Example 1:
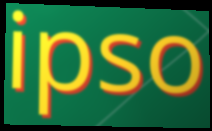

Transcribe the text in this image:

ipso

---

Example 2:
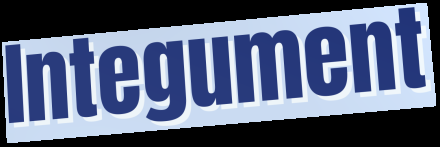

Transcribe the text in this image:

Integument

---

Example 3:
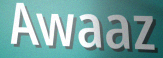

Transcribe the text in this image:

Awaaz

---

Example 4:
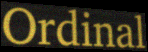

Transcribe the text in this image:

Ordinal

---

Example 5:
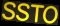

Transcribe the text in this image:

SSTO